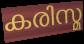
കരിസ്മ